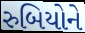
રુબિયોને